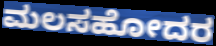
ಮಲಸಹೋದರ